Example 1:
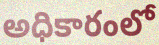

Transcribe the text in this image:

అధికారంలో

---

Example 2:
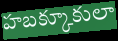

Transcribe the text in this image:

హబక్కూకులా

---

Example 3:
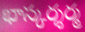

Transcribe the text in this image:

భాస్కర్శర్మ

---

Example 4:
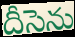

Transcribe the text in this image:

దీసెను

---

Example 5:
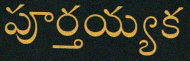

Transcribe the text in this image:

పూర్తయ్యక